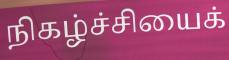
நிகழ்ச்சியைக்